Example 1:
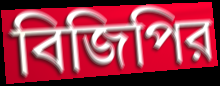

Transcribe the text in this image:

বিজিপির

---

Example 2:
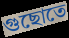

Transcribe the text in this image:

গুছোতে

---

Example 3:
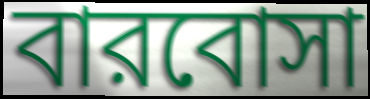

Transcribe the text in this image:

বারবোসা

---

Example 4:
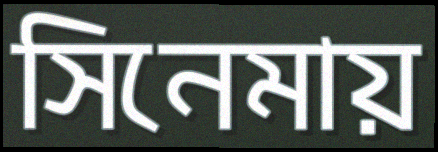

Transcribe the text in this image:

সিনেমায়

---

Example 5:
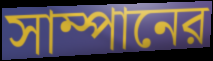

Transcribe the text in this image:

সাম্পানের